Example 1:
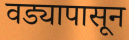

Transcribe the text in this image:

वड्यापासून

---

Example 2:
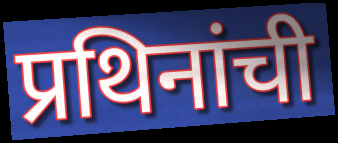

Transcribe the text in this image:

प्रथिनांची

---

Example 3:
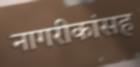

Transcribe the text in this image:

नागरीकांसह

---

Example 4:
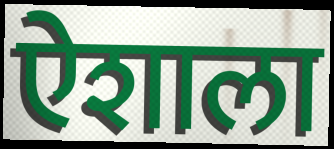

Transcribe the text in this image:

ऐशाला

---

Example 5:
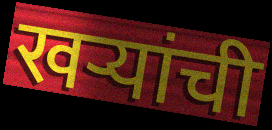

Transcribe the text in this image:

खऱ्यांची